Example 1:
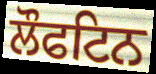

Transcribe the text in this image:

ਲੌਫਟਿਨ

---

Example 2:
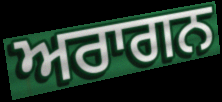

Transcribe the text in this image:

ਅਰਾਗਨ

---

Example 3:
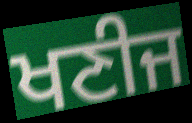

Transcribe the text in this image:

ਖਣੀਜ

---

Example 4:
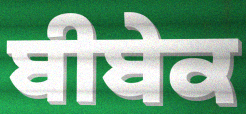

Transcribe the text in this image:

ਬੀਬੇਕ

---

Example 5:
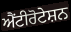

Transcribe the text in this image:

ਐਂਟੀਰੋਟੇਸ਼ਨ